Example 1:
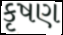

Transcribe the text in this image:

કૃષણ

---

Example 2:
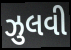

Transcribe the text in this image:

ઝુલવી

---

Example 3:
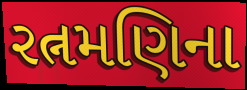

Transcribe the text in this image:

રત્નમણિના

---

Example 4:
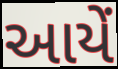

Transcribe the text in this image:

આયેં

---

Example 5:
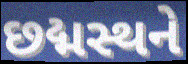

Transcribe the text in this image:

છદ્મસ્થને